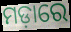
ମଡ଼ାରେ